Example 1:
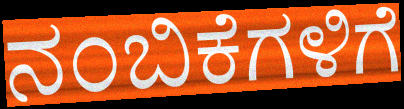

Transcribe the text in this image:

ನಂಬಿಕೆಗಳಿಗೆ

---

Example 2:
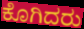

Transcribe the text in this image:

ಕೊಗಿದರು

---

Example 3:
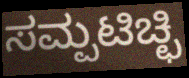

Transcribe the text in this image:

ಸಮ್ಪಟಿಚ್ಛಿ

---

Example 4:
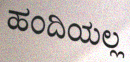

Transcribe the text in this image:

ಹಂದಿಯಲ್ಲ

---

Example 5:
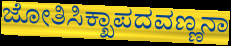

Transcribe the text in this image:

ಜೋತಿಸಿಕ್ಖಾಪದವಣ್ಣನಾ